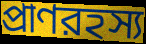
প্রাণরহস্য